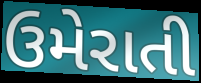
ઉમેરાતી